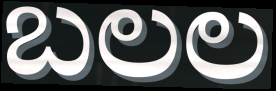
బలల